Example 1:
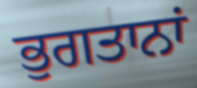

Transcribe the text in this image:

ਭੁਗਤਾਨਾਂ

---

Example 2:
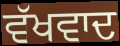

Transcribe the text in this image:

ਵੱਖਵਾਦ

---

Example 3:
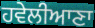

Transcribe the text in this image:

ਹਵੇਲੀਆਣਾ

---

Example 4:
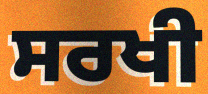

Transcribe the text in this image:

ਸਰਖੀ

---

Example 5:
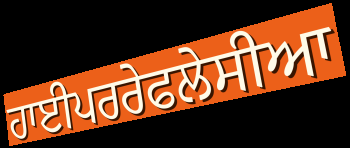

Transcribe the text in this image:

ਹਾਈਪਰਰੇਫਲੇਸੀਆ